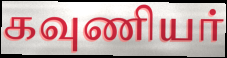
கவுணியர்